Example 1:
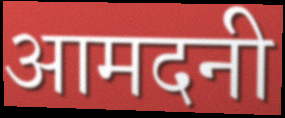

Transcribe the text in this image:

आमदनी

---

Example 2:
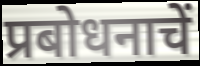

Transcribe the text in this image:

प्रबोधनाचें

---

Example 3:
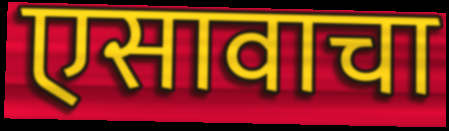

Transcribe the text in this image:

एसावाचा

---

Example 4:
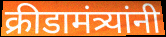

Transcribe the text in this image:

क्रीडामंत्र्यांनी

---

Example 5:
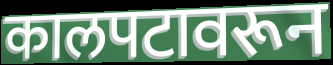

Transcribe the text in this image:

कालपटावरून